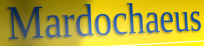
Mardochaeus